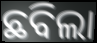
ଛବିଲା